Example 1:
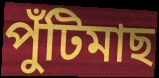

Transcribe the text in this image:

পুঁটিমাছ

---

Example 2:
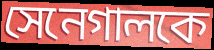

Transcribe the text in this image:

সেনেগালকে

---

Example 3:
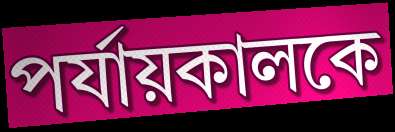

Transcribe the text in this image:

পর্যায়কালকে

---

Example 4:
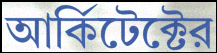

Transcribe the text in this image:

আর্কিটেক্টের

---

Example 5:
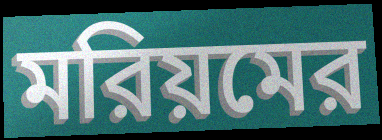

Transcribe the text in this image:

মরিয়মের